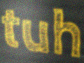
tuh